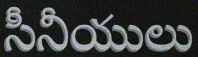
సీనీయులు